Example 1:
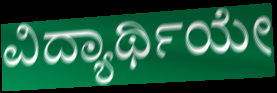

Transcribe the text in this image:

ವಿದ್ಯಾರ್ಥಿಯೇ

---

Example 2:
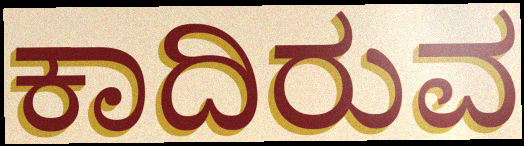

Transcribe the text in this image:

ಕಾದಿರುವ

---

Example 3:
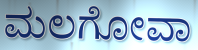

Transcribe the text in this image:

ಮಲಗೋವಾ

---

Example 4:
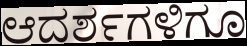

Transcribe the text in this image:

ಆದರ್ಶಗಳಿಗೂ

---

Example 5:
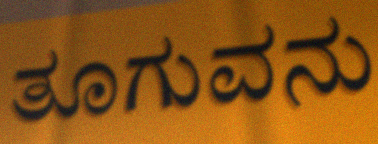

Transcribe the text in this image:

ತೂಗುವನು